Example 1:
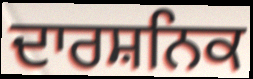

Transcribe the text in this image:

ਦਾਰਸ਼ਨਿਕ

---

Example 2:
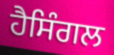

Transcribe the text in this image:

ਹੈਸਿੰਗਲ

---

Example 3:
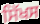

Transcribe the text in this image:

ਸਿੱਖਸ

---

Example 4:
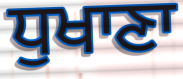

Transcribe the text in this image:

ਧੁਖਾਣਾ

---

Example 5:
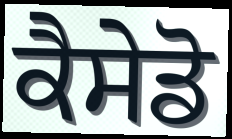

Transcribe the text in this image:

ਕੈਸੇਡੋ